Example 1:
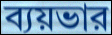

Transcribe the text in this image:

ব্যয়ভার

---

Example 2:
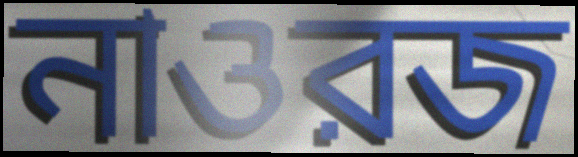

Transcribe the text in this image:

নাওরজ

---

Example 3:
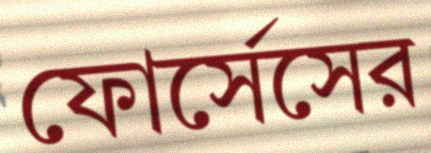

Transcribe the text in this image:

ফোর্সেসের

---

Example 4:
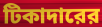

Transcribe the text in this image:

টিকাদারের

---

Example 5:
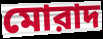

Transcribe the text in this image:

মোরাদ